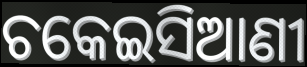
ଚକେଇସିଆଣୀ